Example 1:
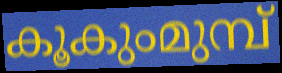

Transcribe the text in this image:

കൂകുംമുമ്പ്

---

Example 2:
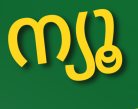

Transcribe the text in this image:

ന്യൂ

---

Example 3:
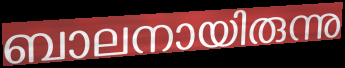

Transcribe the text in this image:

ബാലനായിരുന്നു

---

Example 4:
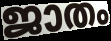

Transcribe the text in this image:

ജാതം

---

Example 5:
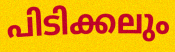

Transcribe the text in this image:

പിടിക്കലും